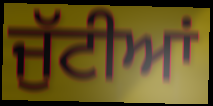
ਜੁੱਟੀਆਂ